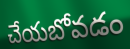
చేయబోవడం